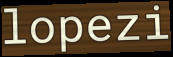
lopezi